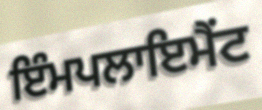
ਇੰਮਪਲਾਇਮੈਂਟ